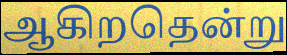
ஆகிறதென்று